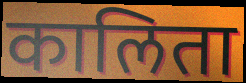
कालिता